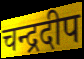
चन्द्रदीप